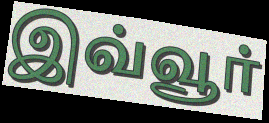
இவ்வூர்